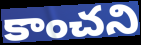
కాంచని